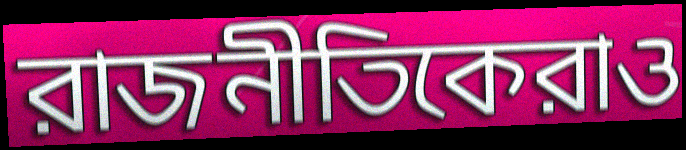
রাজনীতিকেরাও